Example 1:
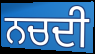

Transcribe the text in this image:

ਨਚਦੀ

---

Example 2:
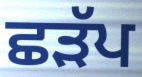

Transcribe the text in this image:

ਛੜੱਪ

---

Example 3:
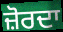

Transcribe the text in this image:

ਜ਼ੋਰਦਾ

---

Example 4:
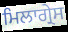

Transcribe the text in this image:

ਮਿਲਾਗ੍ਰੇਸ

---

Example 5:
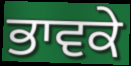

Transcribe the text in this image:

ਭਾਵਕੇ